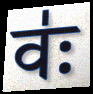
वः॑